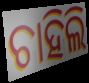
ଚାହିଲି